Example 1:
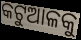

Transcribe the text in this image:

କଟୁଆଳକୁ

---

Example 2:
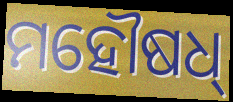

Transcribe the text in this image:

ମହୌଷଧ୍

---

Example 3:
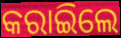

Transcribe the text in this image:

କରାଇିଲେ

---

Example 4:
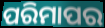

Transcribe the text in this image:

ପରିମାପର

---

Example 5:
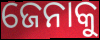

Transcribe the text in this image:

ଜେନାକୁ